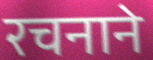
रचनाने